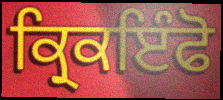
ਕ੍ਰਿਕਇੰਫੋ